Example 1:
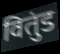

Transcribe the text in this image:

वितुंड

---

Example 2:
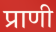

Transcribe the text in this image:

प्राणी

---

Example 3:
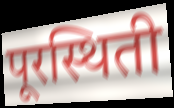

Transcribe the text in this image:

पूरस्थिती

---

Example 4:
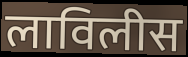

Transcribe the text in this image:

लाविलीस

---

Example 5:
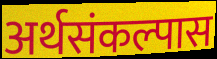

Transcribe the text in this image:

अर्थसंकल्पास